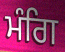
ਮੰਗਿ